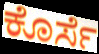
ಕೊರ್ಸೆ